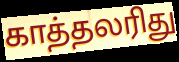
காத்தலரிது